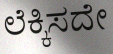
ಲೆಕ್ಕಿಸದೇ